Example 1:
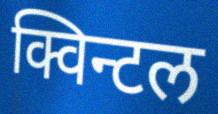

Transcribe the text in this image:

क्विन्टल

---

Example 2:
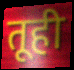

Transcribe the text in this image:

तूही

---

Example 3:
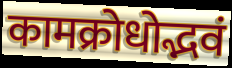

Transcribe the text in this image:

कामक्रोधोद्भवं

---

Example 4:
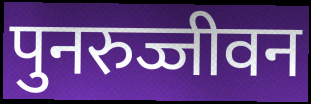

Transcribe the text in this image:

पुनरुज्जीवन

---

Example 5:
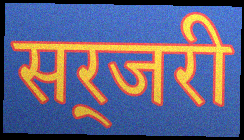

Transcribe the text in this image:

सर्जरी